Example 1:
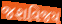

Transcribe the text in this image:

જશવિજય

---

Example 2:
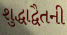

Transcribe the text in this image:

શુદ્ધાદ્વૈતની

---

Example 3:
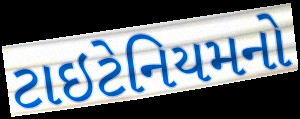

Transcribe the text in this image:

ટાઇટેનિયમનો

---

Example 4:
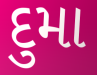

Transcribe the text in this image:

દુમા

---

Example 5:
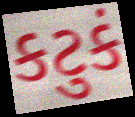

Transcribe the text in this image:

કટુકં